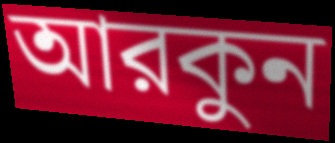
আরকুন